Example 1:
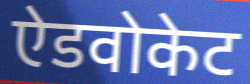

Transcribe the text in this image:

ऐडवोकेट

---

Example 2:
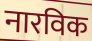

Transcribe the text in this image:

नारविक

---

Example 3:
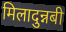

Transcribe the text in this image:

मिलादुन्नबी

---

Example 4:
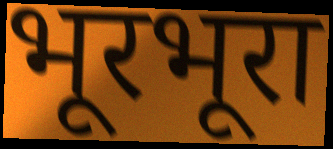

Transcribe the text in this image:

भूरभूरा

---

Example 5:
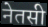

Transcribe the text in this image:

नेतसी